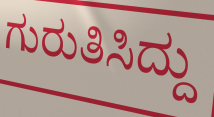
ಗುರುತಿಸಿದ್ದು